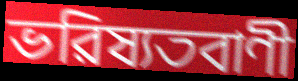
ভৱিষ্যতবাণী